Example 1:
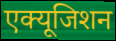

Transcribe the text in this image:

एक्यूजिशन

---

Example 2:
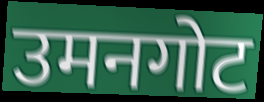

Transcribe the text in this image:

उमनगोट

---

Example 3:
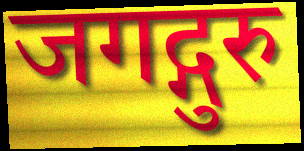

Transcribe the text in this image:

जगद्गुरु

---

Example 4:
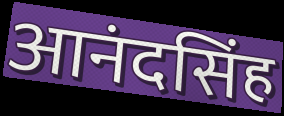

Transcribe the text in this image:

आनंदसिंह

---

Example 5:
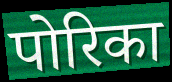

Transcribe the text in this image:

पोरिका